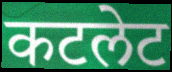
कटलेट